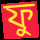
ফু